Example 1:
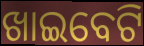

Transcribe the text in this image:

ଖାଇବେଟି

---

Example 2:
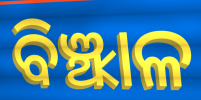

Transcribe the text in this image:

ବିଞ୍ଝାଳ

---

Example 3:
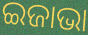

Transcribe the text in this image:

ଇଜାଭା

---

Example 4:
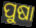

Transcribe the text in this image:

ପୁଷା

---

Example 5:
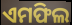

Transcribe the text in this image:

ଏମଫିଲ